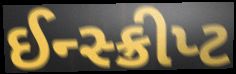
ઈન્સ્ક્રીપ્ટ